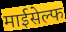
माईसेल्फ